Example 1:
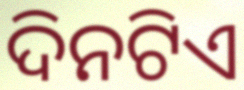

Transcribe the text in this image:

ଦିନଟିଏ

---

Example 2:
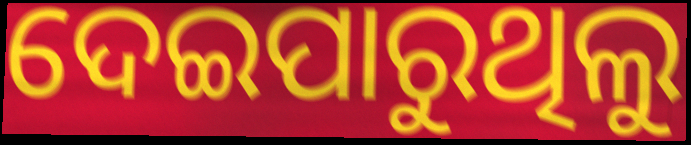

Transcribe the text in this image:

ଦେଇପାରୁଥିଲୁ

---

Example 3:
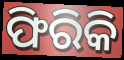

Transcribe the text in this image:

ଫିରିକି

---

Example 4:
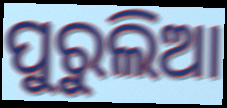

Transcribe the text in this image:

ପୁରୁଲିଆ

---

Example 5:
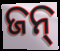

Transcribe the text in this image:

ଜନ୍